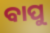
ବାପୁ